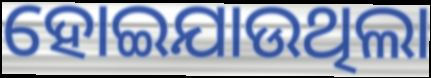
ହୋଇଯାଉଥିଲା